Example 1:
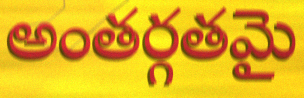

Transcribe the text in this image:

అంతర్గతమై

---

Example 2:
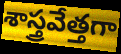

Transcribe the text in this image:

శాస్త్రవేత్తగా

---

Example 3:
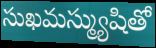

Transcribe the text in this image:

సుఖమస్మ్యుషితో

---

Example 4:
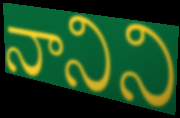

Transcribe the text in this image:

నానిని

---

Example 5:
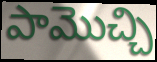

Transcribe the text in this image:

పామొచ్చి